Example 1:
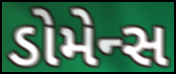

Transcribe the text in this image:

ડોમેન્સ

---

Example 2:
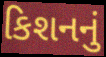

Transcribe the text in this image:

કિશનનું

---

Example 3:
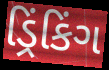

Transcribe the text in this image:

ડ્રિંકિંગ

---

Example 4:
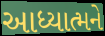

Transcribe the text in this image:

આધ્યાત્મને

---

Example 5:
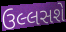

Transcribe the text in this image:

ઉલ્લસશે